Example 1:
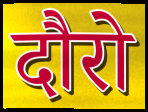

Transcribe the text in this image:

दौरो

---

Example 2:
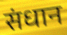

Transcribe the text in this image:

संधान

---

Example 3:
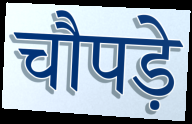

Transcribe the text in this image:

चौपड़े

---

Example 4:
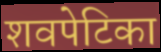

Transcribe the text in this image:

शवपेटिका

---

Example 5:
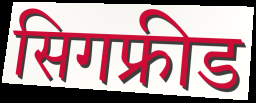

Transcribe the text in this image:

सिगफ्रीड